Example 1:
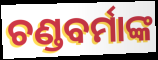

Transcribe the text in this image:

ଚଣ୍ଡବର୍ମାଙ୍କ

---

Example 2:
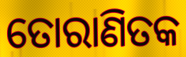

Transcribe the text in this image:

ତୋରାଣିତକ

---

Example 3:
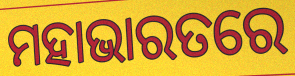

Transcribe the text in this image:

ମହାଭାରତରେ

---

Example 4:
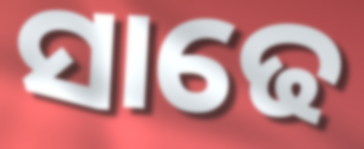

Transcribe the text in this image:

ସାଢେ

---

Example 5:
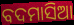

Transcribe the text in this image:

ବଦମାସିଆ